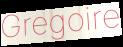
Gregoire